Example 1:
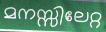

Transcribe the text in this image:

മനസ്സിലേറ്റ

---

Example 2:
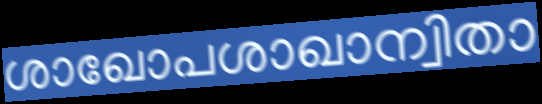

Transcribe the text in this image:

ശാഖോപശാഖാന്വിതാ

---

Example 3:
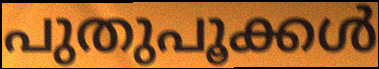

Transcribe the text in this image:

പുതുപൂക്കൾ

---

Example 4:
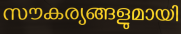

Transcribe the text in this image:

സൗകര്യങ്ങളുമായി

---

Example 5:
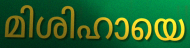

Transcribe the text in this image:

മിശിഹായെ